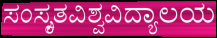
ಸಂಸ್ಕೃತವಿಶ್ವವಿದ್ಯಾಲಯ